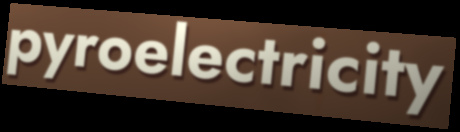
pyroelectricity